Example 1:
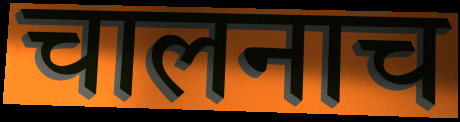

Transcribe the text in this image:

चालनाच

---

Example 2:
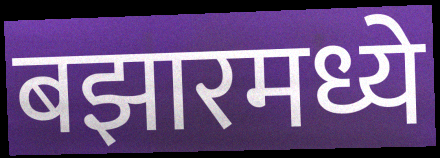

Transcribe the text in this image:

बझारमध्ये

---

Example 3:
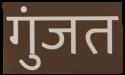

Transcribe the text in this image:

गुंजत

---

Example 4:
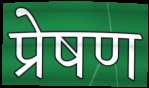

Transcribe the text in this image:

प्रेषण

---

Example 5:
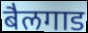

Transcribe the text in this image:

बैलगाड